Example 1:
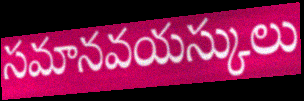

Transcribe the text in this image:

సమానవయస్కులు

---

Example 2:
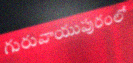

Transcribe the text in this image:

గురువాయుపురంలో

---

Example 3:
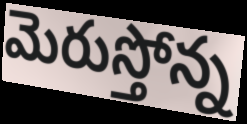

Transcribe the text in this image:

మెరుస్తోన్న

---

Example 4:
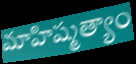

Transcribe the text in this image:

మాహిష్మత్యాం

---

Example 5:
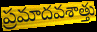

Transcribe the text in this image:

ప్రమాదవశాత్తు